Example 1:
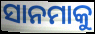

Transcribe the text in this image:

ସାନମାକୁ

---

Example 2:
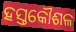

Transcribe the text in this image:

ହସ୍ତକୌଶଳ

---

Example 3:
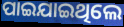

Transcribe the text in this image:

ପାଇଯାଇଥିଲେ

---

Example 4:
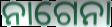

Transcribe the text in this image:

ନାଗେନା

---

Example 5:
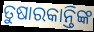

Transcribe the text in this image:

ତୁଷାରକାନ୍ତିଙ୍କ